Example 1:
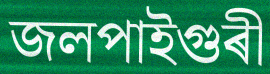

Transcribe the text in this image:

জলপাইগুৰী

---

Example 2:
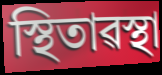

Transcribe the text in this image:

স্থিতাৱস্থা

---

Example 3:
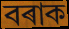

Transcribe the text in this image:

বৰাক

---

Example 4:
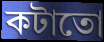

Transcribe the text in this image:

কটাতো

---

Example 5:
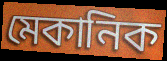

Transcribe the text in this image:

মেকানিক